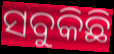
ସବୁକିଛି